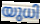
യുധി